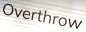
Overthrow